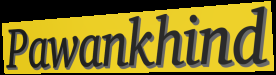
Pawankhind